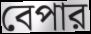
বেপার